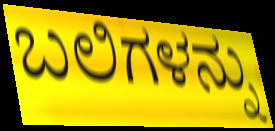
ಬಲಿಗಳನ್ನು